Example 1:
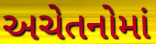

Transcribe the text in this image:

અચેતનોમાં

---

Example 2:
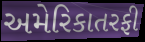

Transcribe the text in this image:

અમેરિકાતરફી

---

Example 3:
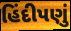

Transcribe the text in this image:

હિંદીપણું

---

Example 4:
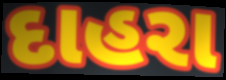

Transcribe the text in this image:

દાહરા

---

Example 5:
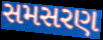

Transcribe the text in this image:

સમસરણ